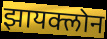
झायक्लोन